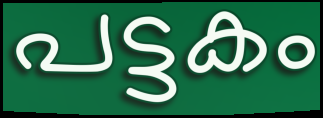
പട്ടകം